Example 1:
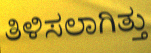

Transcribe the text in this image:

ತಿಳಿಸಲಾಗಿತ್ತು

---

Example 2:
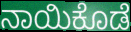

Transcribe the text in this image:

ನಾಯಿಕೊಡೆ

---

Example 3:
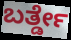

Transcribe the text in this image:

ಬರ್ತ್ಡೇ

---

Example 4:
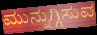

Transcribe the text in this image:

ಮುನ್ನುಗ್ಗಿಸುವ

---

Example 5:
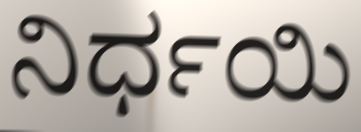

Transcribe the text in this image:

ನಿರ್ಧಯಿ